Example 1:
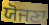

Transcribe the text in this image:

ਯੋਜਣਾ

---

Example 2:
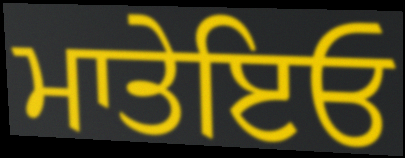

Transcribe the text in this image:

ਮਾਤੇਇਓ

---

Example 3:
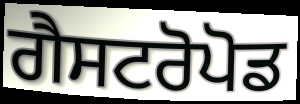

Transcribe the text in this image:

ਗੈਸਟਰੋਪੋਡ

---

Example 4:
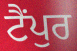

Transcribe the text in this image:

ਟੈਂਪੁਰ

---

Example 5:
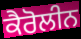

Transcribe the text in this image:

ਕੈਰੋਲੀਨ